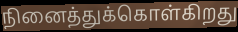
நினைத்துக்கொள்கிறது